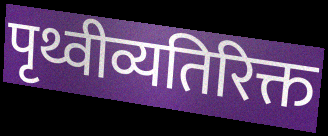
पृथ्वीव्यतिरिक्त